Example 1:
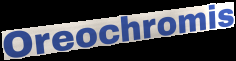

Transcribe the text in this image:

Oreochromis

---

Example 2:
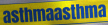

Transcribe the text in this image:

asthmaasthma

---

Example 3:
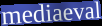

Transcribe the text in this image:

mediaeval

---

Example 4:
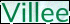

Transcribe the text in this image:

Villee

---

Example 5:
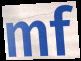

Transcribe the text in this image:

mf